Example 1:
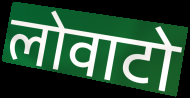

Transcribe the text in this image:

लोवाटो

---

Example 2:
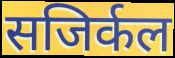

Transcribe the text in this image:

सजिर्कल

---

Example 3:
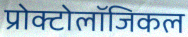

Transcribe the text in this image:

प्रोक्टोलॉजिकल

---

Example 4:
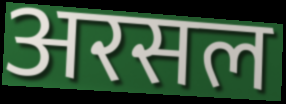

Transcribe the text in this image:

अरसल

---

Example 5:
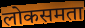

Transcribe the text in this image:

लोकसमता